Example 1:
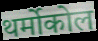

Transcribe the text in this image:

थर्मोकोल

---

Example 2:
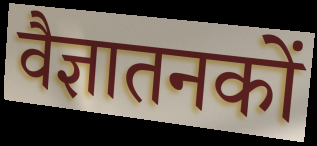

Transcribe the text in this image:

वैज्ञातनकों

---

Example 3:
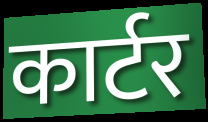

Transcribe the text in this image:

कार्टर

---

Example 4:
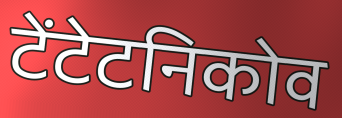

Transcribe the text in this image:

टेंटेटनिकोव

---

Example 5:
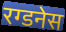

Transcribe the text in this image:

रग्डनेस